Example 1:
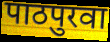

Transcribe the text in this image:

पाठपुरवा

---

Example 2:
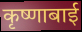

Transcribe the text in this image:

कृष्णाबाई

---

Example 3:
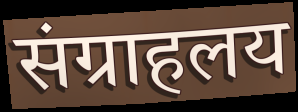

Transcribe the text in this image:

संग्राहलय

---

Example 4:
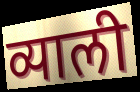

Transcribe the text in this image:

व्याली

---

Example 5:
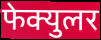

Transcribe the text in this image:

फेक्युलर